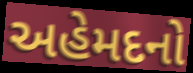
અહેમદનો